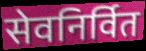
सेवनिर्वित